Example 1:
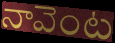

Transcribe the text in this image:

నావెంట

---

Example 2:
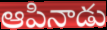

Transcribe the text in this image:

ఆపినాడు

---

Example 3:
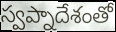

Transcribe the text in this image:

స్వప్నాదేశంతో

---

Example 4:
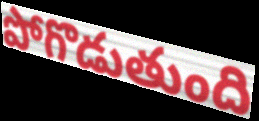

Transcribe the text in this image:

పోగొడుతుంది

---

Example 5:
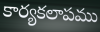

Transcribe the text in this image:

కార్యకలాపము